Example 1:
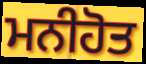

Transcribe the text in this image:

ਮਨੀਹੋਤ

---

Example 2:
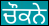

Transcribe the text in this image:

ਚੌਕਨੇ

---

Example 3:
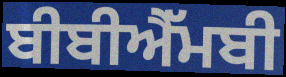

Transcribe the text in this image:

ਬੀਬੀਐੱਮਬੀ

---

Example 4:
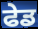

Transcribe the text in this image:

ਫੇਡ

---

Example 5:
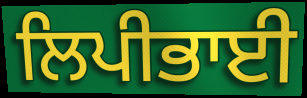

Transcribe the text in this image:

ਲਿਪੀਭਾਈ